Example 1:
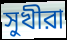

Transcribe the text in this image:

সুখীরা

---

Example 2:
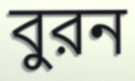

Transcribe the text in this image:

বুরন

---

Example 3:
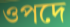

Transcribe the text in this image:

ওপদে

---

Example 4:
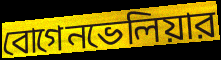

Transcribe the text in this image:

বোগেনভেলিয়ার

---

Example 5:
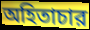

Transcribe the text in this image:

অহিতাচার